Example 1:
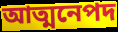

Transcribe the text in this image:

আত্মনেপদ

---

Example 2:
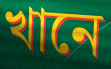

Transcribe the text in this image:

খানে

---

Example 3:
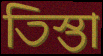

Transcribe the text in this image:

তিস্তা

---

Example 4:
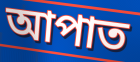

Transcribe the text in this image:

আপাত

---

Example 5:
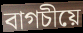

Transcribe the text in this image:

বাগচীয়ে